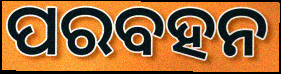
ପରବହନ